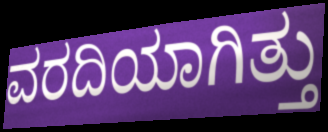
ವರದಿಯಾಗಿತ್ತು